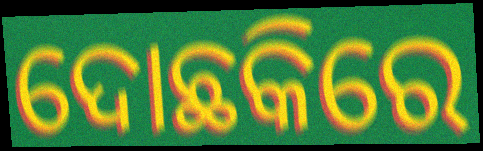
ଦୋଛକିରେ